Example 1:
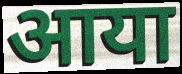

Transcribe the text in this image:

आया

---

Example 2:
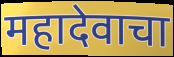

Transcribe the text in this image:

महादेवाचा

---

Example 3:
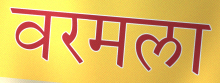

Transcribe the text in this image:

वरमला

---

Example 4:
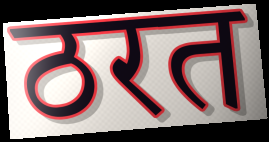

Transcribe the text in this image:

ठरत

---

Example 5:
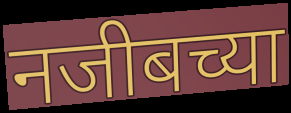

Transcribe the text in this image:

नजीबच्या